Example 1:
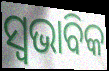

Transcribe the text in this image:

ସ୍ୱଭାବିକ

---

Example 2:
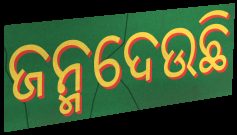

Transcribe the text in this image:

ଜନ୍ମଦେଉଛି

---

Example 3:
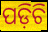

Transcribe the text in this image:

ପଡ଼ିଚି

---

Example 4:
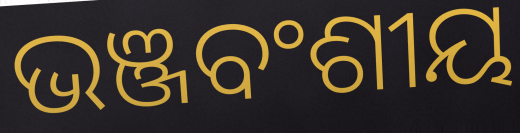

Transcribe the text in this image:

ଭଞ୍ଜବଂଶୀୟ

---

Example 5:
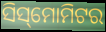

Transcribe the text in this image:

ସିସ୍‌ମୋମିଟର